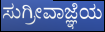
ಸುಗ್ರೀವಾಜ್ಞೆಯ